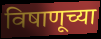
विषाणूच्या